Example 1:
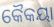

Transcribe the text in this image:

କୈକୟା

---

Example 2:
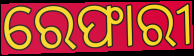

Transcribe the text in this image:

ରେଫାରୀ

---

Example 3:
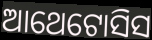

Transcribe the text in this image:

ଆଥେଟୋସିସ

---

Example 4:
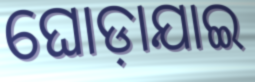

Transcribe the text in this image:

ଘୋଡ଼ାଯାଇ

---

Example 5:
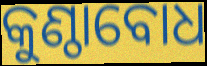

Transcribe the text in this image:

କୁଣ୍ଠାବୋଧ